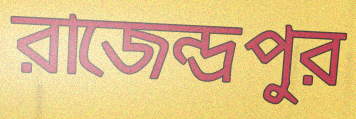
রাজেন্দ্রপুর